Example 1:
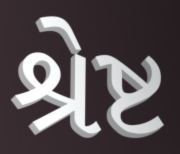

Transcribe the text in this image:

શ્રેષ્ટ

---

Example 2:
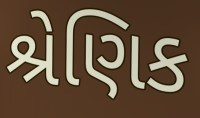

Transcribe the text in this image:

શ્રેણિક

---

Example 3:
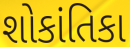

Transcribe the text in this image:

શોકાંતિકા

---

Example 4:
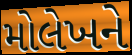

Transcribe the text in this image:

મોલેખને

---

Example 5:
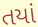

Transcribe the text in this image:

તયાં